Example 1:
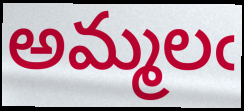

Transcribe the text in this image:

అమ్మలఁ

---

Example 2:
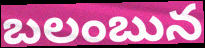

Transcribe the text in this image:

బలంబున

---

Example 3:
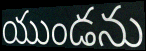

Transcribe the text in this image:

యుండను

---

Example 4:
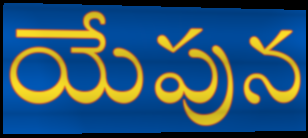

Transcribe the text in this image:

యేపున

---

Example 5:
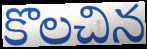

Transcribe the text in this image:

కొలచిన